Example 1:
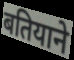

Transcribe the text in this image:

बतियाने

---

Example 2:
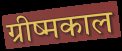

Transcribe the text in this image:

ग्रीष्मकाल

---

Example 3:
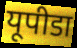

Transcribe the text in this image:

यूपीडा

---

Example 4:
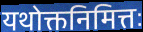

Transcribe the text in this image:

यथोक्तनिमित्तः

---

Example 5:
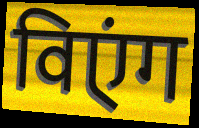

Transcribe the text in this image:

विएंग